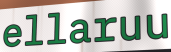
ellaruu